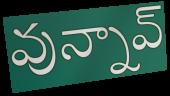
వున్నావ్